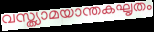
വസ്ത്യാമയാന്തകഘൃതം